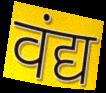
वंद्य